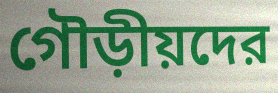
গৌড়ীয়দের